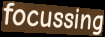
focussing